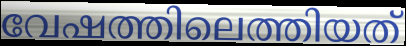
വേഷത്തിലെത്തിയത്